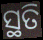
ସ୍ଥତି